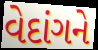
વેદાંગને